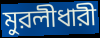
মুরলীধারী